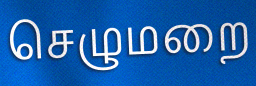
செழுமறை